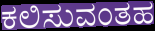
ಕಲಿಸುವಂತಹ